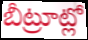
బీట్రూట్లో